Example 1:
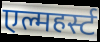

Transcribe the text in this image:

एल्महर्स्ट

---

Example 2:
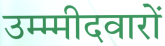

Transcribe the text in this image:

उम्म्मीदवारों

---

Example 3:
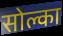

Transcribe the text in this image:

सोल्का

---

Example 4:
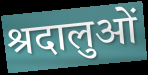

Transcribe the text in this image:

श्रदालुओं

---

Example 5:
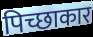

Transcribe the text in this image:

पिच्छाकार